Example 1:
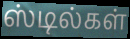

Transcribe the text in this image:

ஸ்டில்கள்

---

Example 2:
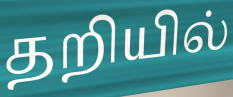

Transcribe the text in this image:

தறியில்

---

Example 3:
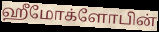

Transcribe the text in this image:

ஹீமோக்ளோபின்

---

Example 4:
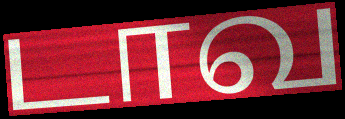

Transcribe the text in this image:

டாவ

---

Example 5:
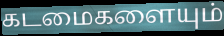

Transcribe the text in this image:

கடமைகளையும்